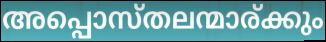
അപ്പൊസ്തലന്മാര്ക്കും